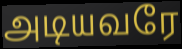
அடியவரே